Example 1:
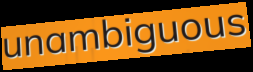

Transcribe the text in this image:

unambiguous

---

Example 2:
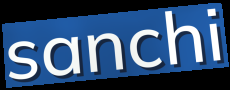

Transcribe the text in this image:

sanchi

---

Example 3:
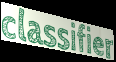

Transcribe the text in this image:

classifier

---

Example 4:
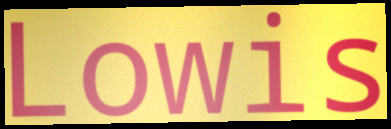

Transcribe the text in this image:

Lowis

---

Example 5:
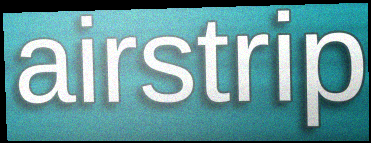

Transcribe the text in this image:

airstrip